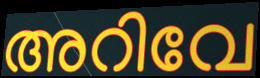
അറിവേ